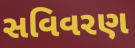
સવિવરણ